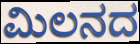
ಮಿಲನದ